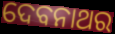
ଦେବନାଥର